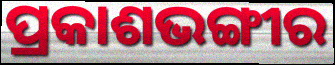
ପ୍ରକାଶଭଙ୍ଗୀର